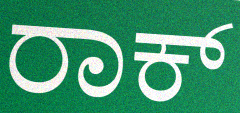
ರಾಕ್